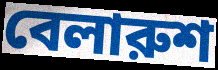
বেলারুশ